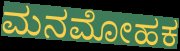
ಮನಮೋಹಕ